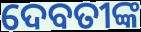
ଦେବତୀଙ୍କ